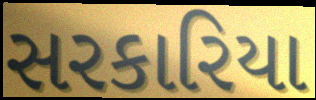
સરકારિયા